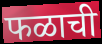
फळाची